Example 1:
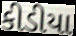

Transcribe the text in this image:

કીડીયા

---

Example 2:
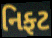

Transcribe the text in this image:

નિફ્ટ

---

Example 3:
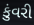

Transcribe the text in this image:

કુંવરી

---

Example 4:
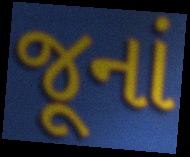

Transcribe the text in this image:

જૂનાં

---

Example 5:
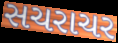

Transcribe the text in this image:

સચરાચર